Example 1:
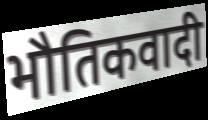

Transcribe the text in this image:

भौतिकवादी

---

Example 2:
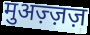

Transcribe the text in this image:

मुअज़्ज़ज़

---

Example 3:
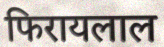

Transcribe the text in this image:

फिरायलाल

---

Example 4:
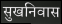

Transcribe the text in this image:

सुखनिवास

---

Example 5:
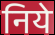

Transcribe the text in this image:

निये